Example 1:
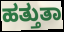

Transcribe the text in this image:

ಹತ್ತುತಾ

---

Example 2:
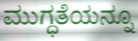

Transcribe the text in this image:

ಮುಗ್ಧತೆಯನ್ನೂ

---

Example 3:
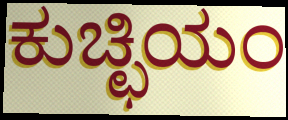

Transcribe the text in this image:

ಕುಚ್ಛಿಯಂ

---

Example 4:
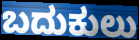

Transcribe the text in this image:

ಬದುಕುಲು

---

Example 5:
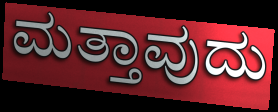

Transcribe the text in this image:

ಮತ್ತಾವುದು